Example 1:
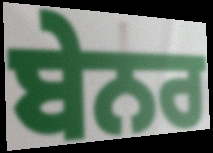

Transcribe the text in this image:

ਬੇਨਰ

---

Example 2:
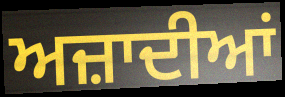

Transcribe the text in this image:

ਅਜ਼ਾਦੀਆਂ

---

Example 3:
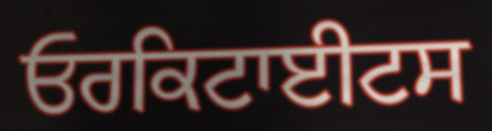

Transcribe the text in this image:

ਓਰਕਿਟਾਈਟਸ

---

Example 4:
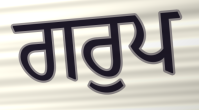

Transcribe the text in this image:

ਗਰੁਪ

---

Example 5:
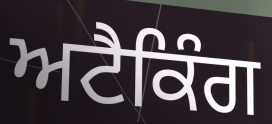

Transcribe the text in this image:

ਅਟੈਕਿੰਗ